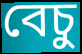
বেচু